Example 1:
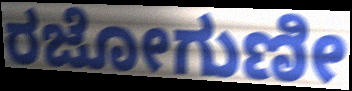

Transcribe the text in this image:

ರಜೋಗುಣೀ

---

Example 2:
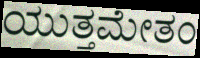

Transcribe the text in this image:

ಯುತ್ತಮೇತಂ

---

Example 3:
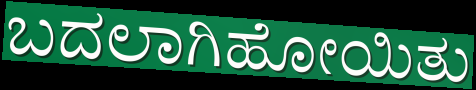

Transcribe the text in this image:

ಬದಲಾಗಿಹೋಯಿತು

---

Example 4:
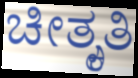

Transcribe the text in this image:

ಚೀತ್ಕೃತಿ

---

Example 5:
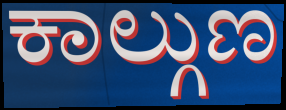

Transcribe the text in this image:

ಕಾಲ್ಗುಣ